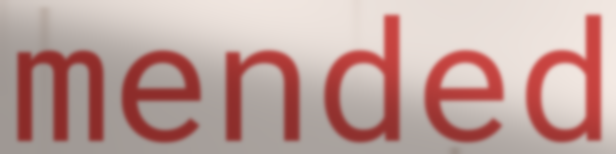
mended